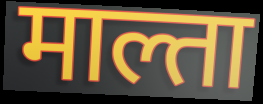
माल्ता